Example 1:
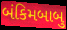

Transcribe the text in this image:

બંકિમબાબુ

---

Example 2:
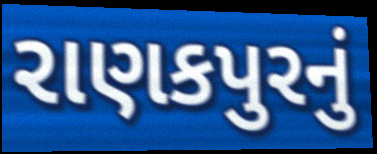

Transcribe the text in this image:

રાણકપુરનું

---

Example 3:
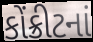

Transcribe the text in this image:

કોંક્રીટનાં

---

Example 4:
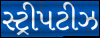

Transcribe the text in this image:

સ્ટ્રીપટીઝ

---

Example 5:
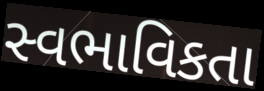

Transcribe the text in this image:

સ્વભાવિકતા